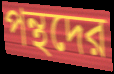
পন্থদের